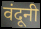
वंदूनी